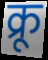
क्रू